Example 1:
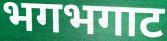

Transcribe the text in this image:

भगभगाट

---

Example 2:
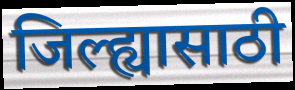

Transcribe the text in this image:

जिल्ह्यासाठी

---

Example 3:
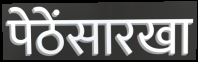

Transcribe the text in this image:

पेठेंसारखा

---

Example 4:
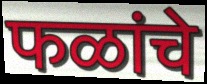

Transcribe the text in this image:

फळांचे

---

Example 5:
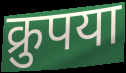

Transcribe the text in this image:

क्रुपया